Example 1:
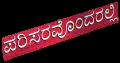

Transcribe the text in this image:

ಪರಿಸರವೊಂದರಲ್ಲಿ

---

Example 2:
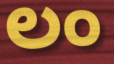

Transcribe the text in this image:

ಲಂ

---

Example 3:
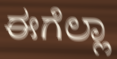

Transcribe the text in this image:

ಈಗೆಲ್ಲಾ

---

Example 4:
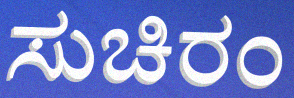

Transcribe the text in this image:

ಸುಚಿರಂ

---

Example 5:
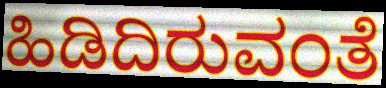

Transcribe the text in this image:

ಹಿಡಿದಿರುವಂತೆ